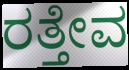
ರತ್ತೇವ